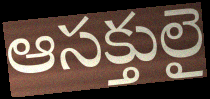
ఆసక్తులై